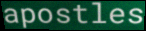
apostles